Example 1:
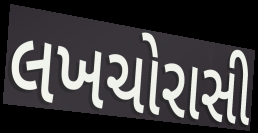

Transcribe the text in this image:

લખચોરાસી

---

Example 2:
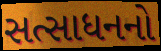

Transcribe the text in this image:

સત્સાધનનો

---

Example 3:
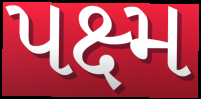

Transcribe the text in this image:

પક્ષ્મ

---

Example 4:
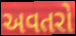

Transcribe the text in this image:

અવતરો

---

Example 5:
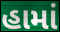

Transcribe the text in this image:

હામાં